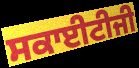
ਸਕਾਈਟੀਜੀ